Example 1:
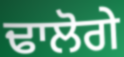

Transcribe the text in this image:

ਢਾਲੋਗੇ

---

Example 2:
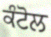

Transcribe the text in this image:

ਕੰਟੋਲ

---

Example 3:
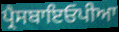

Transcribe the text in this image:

ਪ੍ਰੈਸਬਾਇਓਪੀਆ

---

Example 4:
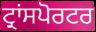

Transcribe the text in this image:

ਟ੍ਰਾਂਸਪੋਰਟਰ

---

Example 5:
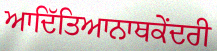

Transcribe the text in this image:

ਆਦਿੱਤਿਆਨਾਥਕੇਂਦਰੀ